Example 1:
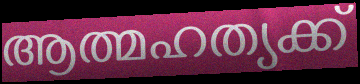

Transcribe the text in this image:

ആത്മഹത്യക്ക്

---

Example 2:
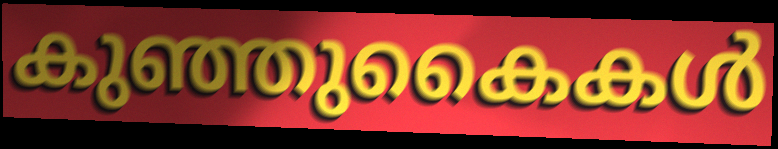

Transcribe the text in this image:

കുഞ്ഞുകൈകൾ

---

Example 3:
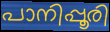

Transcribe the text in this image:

പാനിപ്പൂരി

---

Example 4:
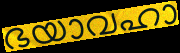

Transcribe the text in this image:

ഭയാവഹാ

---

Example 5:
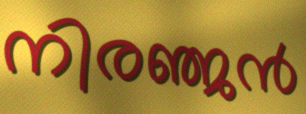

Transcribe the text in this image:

നിരഞ്ജൻ